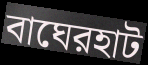
বাঘেরহাট